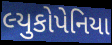
લ્યુકોપેનિયા